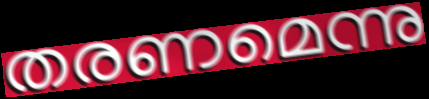
തരണമെന്നു